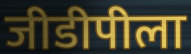
जीडीपीला